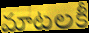
మాటలకీ